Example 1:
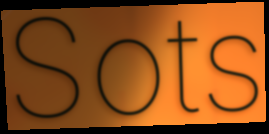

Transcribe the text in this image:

Sots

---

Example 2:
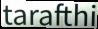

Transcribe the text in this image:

tarafthi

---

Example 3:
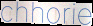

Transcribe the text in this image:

chhorie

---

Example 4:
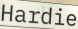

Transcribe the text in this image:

Hardie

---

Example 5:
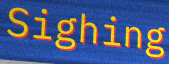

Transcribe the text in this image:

Sighing